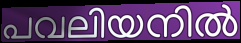
പവലിയനിൽ